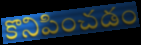
కొనిపించడం